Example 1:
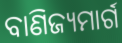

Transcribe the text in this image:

ବାଣିଜ୍ୟମାର୍ଗ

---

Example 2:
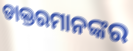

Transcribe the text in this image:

ଡାକ୍ତରମାନଙ୍କର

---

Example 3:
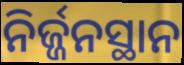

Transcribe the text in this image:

ନିର୍ଜ୍ଜନସ୍ଥାନ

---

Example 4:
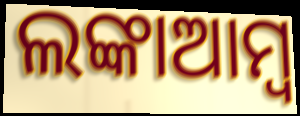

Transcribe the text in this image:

ଲଙ୍କାଆମ୍ବ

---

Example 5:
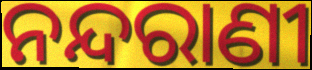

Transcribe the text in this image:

ନନ୍ଦରାଣୀ